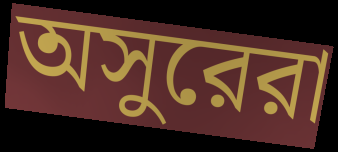
অসুরেরা